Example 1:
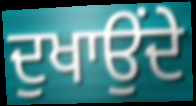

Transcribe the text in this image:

ਦੁਖਾਉਂਦੇ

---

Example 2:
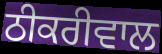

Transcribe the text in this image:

ਠੀਕਰੀਵਾਲ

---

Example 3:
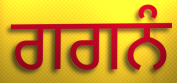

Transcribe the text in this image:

ਗਗਨੰ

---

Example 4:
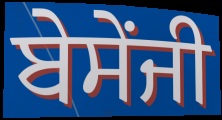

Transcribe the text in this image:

ਬੇਸੇਂਜੀ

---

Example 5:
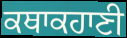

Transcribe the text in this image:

ਕਥਾਕਹਾਣੀ